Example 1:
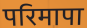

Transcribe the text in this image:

परिमापा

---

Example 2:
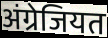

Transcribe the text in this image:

अंग्रेजियत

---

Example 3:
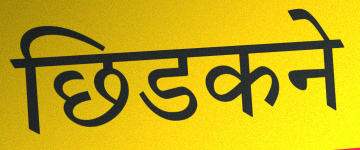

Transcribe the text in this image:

छिडकने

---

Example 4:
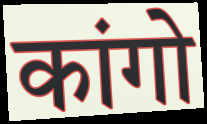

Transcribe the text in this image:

कांगो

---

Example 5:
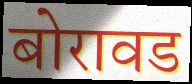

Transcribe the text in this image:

बोरावड